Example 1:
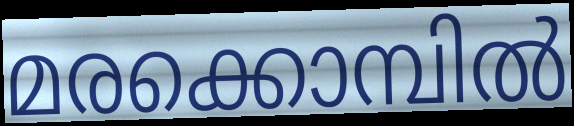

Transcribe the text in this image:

മരക്കൊമ്പിൽ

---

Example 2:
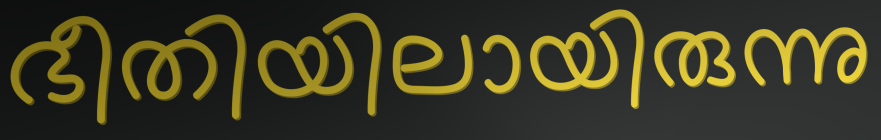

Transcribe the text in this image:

ഭീതിയിലായിരുന്നു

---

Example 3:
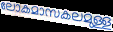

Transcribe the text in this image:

ലോകമാസകലമുള്ള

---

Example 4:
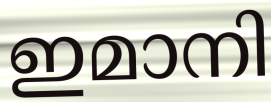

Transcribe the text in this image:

ഇമാനി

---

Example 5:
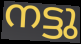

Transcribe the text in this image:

നട്ടു